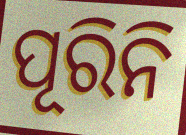
ପୂରିନି